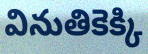
వినుతికెక్కి